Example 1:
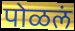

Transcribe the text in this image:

पोळलं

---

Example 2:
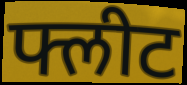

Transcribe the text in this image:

फ्लीट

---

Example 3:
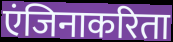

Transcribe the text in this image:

एंजिनाकरिता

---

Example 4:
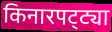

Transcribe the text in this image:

किनारपट्ट्या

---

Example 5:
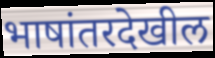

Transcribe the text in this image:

भाषांतरदेखील